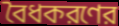
বৈধকরণের